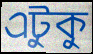
এটুকু